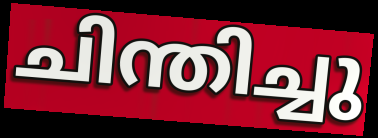
ചിന്തിച്ചു